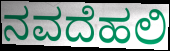
ನವದೆಹಲಿ